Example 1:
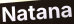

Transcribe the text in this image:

Natana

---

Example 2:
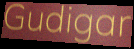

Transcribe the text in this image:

Gudigar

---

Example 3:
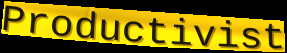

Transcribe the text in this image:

Productivist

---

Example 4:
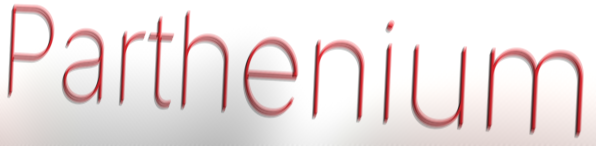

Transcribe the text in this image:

Parthenium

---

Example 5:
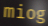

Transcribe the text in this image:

miog